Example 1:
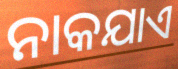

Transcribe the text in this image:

ନାକଯାଏ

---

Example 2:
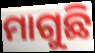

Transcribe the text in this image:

ମାଗୁଛି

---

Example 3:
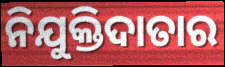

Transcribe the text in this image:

ନିଯୁକ୍ତିଦାତାର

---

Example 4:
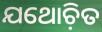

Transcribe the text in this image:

ଯଥୋଚ଼ିତ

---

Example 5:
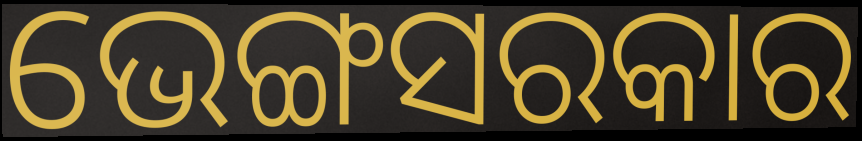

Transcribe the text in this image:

ଭେଙ୍ଗସରକାର